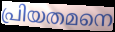
പ്രിയതമനെ